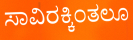
ಸಾವಿರಕ್ಕಿಂತಲೂ